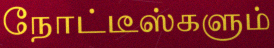
நோட்டீஸ்களும்